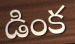
డింక